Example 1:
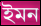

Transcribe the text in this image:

ইমন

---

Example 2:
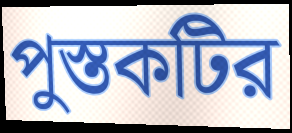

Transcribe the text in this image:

পুস্তকটির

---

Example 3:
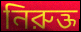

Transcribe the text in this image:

নিরুক্ত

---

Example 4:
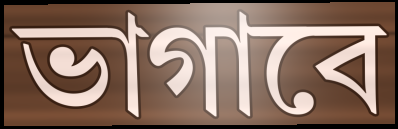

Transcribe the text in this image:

ভাগাবে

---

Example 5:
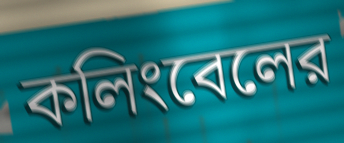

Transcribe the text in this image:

কলিংবেলের